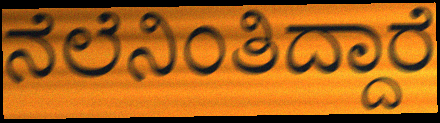
ನೆಲೆನಿಂತಿದ್ದಾರೆ